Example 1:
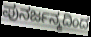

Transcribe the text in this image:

ಪುನರ್ಜನ್ಮದಿಂದ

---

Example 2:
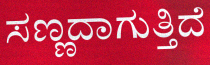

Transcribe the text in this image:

ಸಣ್ಣದಾಗುತ್ತಿದೆ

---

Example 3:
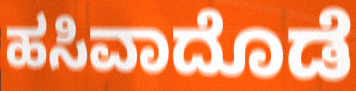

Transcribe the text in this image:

ಹಸಿವಾದೊಡೆ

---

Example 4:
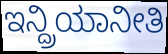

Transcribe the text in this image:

ಇನ್ದ್ರಿಯಾನೀತಿ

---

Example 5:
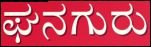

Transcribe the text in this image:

ಘನಗುರು